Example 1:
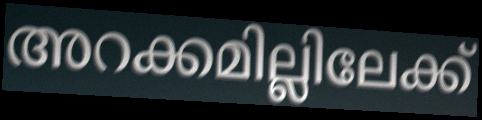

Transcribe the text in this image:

അറക്കമില്ലിലേക്ക്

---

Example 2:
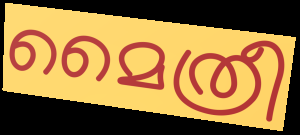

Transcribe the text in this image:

മൈത്രീ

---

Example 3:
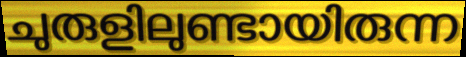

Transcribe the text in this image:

ചുരുളിലുണ്ടായിരുന്ന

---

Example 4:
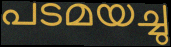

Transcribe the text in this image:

പടമയച്ചു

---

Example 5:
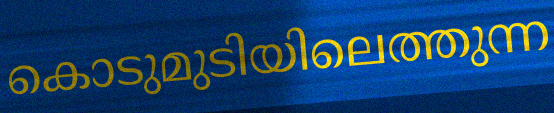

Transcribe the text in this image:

കൊടുമുടിയിലെത്തുന്ന